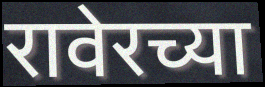
रावेरच्या